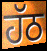
ਹੱਠ